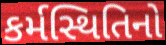
કર્મસ્થિતિનો